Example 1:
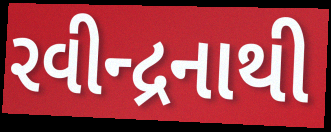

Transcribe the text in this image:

રવીન્દ્રનાથી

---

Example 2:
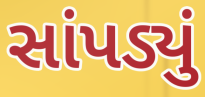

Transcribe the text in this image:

સાંપડ્યું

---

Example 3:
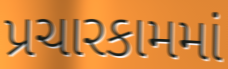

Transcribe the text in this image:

પ્રચારકામમાં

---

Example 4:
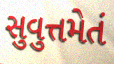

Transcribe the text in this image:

સુવુત્તમેતં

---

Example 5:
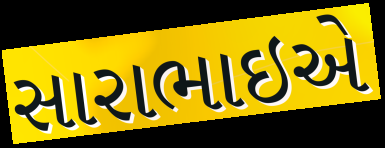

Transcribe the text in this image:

સારાભાઇએ